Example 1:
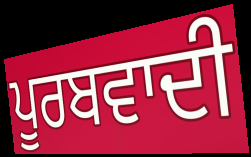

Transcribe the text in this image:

ਪੂਰਬਵਾਦੀ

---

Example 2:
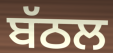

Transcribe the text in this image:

ਬੱਠਲ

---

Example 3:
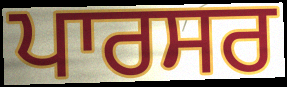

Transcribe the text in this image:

ਪਾਰਸਰ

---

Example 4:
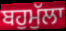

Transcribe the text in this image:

ਬਹੁਮੁੱਲਾ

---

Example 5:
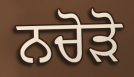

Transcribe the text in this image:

ਨਚੋੜੋ